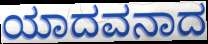
ಯಾದವನಾದ